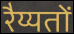
रैय्यतों